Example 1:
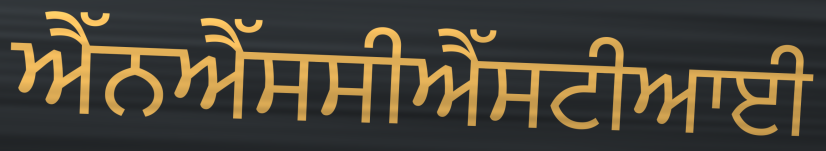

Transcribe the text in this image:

ਐੱਨਐੱਸਸੀਐੱਸਟੀਆਈ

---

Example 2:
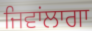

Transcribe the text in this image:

ਜਿਵਾਂਲਾਗਾ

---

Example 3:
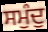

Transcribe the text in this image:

ਸਮੁੰਦੁ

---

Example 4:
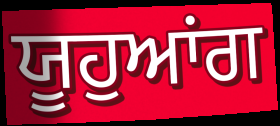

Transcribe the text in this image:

ਯੂਹੁਆਂਗ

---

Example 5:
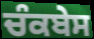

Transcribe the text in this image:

ਚੰਕਬੇਸ